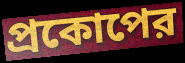
প্রকোপের